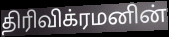
திரிவிக்ரமனின்